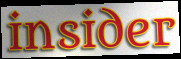
insider